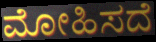
ಮೋಹಿಸದೆ